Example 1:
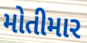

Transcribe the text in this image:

મોતીમાર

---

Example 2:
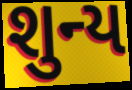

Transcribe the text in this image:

શુન્ય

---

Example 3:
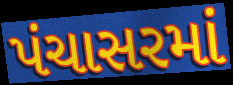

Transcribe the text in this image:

પંચાસરમાં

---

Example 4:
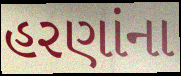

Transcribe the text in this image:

હરણાંના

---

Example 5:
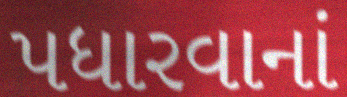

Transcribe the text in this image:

પધારવાનાં